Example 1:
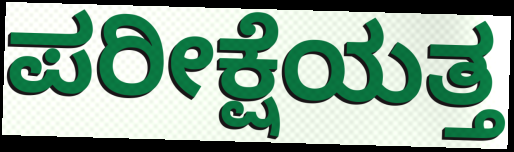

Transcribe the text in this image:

ಪರೀಕ್ಷೆಯತ್ತ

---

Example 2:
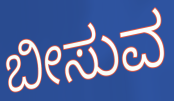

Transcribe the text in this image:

ಬೀಸುವ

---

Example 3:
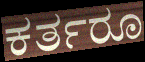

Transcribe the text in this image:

ಕರ್ತರೂ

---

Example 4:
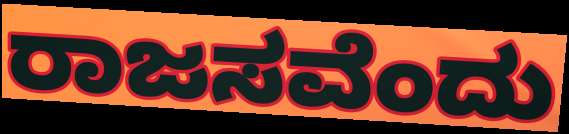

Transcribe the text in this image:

ರಾಜಸವೆಂದು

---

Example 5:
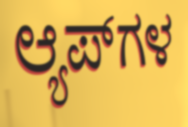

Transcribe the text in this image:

ಆ್ಯಪ್‌ಗಳ